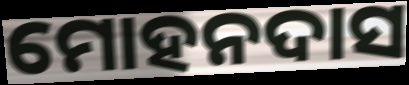
ମୋହନଦାସ